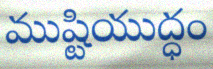
ముష్టియుద్ధం